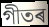
গীতৰ